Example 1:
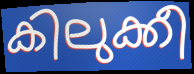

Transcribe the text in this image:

കിലുക്കീ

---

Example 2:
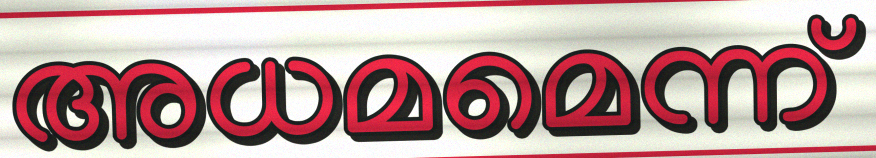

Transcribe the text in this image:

അധമമെന്ന്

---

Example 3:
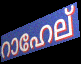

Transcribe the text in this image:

റാഹേല്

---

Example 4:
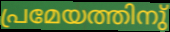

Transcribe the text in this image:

പ്രമേയത്തിനു്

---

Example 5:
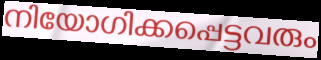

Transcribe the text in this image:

നിയോഗിക്കപ്പെട്ടവരും